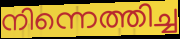
നിന്നെത്തിച്ച